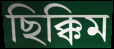
ছিক্কিম